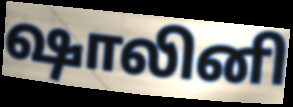
ஷாலினி